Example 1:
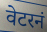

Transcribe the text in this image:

वेटरनं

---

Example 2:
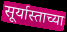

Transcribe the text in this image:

सूर्यास्ताच्या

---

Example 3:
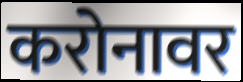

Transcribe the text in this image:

करोनावर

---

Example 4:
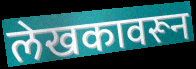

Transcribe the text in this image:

लेखकावरून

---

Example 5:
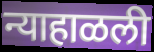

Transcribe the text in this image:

न्याहाळली